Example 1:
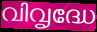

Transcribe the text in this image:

വിവൃദ്ധേ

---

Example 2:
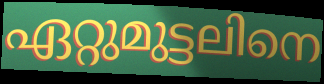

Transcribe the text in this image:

ഏറ്റുമുട്ടലിനെ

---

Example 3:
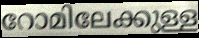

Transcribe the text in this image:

റോമിലേക്കുള്ള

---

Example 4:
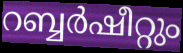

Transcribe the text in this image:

റബ്ബർഷീറ്റും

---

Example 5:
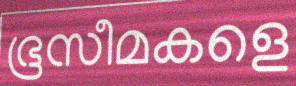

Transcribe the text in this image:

ഭൂസീമകളെ